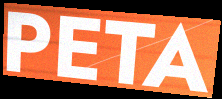
PETA